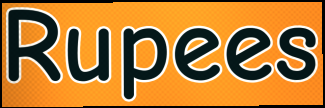
Rupees